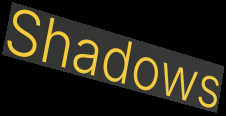
Shadows